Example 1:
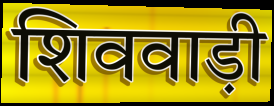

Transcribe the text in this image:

शिववाड़ी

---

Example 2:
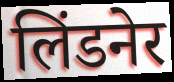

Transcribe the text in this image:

लिंडनेर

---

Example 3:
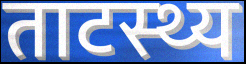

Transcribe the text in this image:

ताटस्थ्य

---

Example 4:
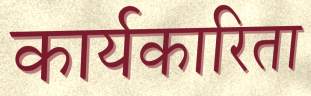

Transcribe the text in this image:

कार्यकारिता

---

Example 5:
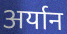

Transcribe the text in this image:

अर्यान